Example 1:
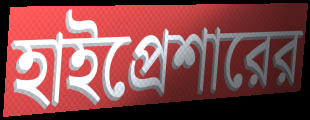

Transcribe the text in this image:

হাইপ্রেশারের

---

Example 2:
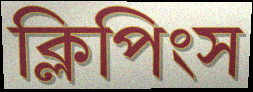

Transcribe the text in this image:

ক্লিপিংস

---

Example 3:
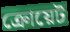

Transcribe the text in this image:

ক্রোয়েট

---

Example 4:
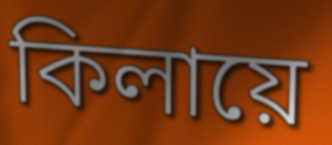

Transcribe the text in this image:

কিলায়ে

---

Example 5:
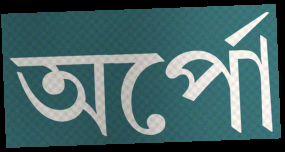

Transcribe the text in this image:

অর্পো